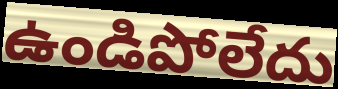
ఉండిపోలేదు